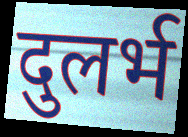
दुलर्भ